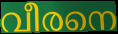
വീരനെ